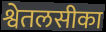
श्वेतलसीका